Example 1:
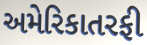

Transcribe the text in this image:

અમેરિકાતરફી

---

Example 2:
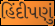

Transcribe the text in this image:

હિંદીપણું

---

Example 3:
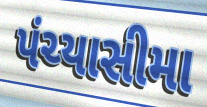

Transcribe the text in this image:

પંચ્યાસીમા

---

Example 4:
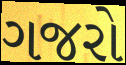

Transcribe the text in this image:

ગજરો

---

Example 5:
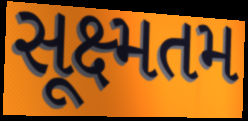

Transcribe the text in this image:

સૂક્ષ્મતમ